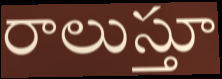
రాలుస్తూ